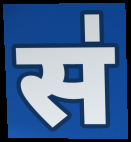
स॑